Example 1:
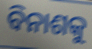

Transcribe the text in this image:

ବିନାଶକୁ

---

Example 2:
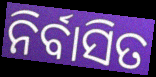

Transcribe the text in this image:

ନିର୍ବାସିତ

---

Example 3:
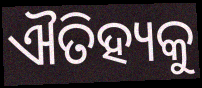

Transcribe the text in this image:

ଐତିହ୍ୟକୁ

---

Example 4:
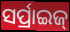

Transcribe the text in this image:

ସର୍ପ୍ରାଇଜ୍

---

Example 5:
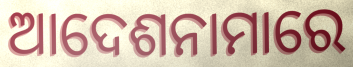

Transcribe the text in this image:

ଆଦେଶନାମାରେ